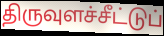
திருவுளச்சீட்டுப்